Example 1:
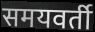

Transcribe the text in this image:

समयवर्ती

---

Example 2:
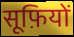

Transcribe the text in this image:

सूफ़ियों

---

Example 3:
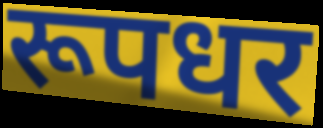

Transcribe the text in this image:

रूपधर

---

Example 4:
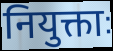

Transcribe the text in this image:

नियुक्ताः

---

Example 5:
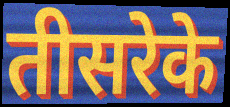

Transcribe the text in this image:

तीसरेके